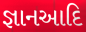
જ્ઞાનઆદિ